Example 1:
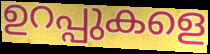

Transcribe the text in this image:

ഉറപ്പുകളെ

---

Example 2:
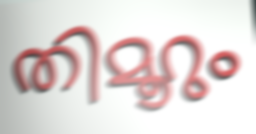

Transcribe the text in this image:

തിമൂറും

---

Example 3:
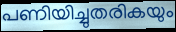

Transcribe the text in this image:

പണിയിച്ചുതരികയും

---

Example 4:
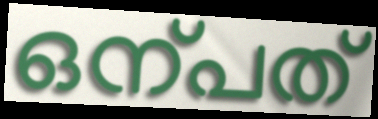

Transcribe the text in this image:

ഒന്പത്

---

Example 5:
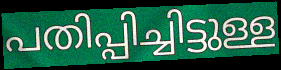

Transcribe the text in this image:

പതിപ്പിച്ചിട്ടുള്ള